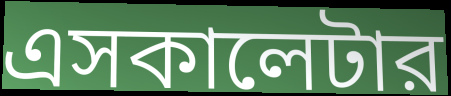
এসকালেটার